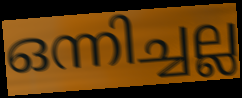
ഒന്നിച്ചല്ല